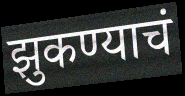
झुकण्याचं